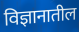
विज्ञानातील